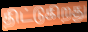
திட்டுகிறது